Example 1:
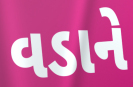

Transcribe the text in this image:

વડાને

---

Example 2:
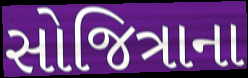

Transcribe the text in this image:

સોજિત્રાના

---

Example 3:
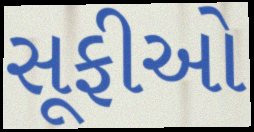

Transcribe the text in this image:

સૂફીઓ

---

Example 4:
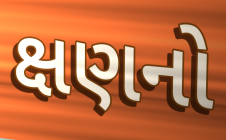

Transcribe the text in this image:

ક્ષણનો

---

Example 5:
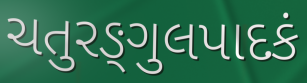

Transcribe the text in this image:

ચતુરઙ્ગુલપાદકં